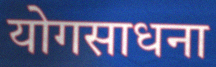
योगसाधना